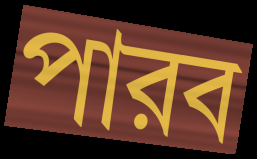
পারব